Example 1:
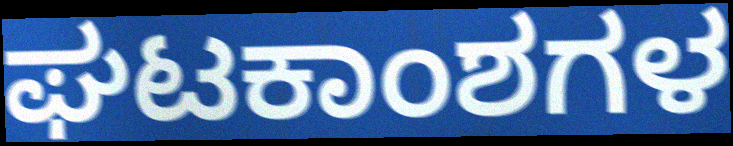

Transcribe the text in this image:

ಘಟಕಾಂಶಗಳ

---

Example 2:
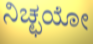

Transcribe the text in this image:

ನಿಚ್ಛಯೋ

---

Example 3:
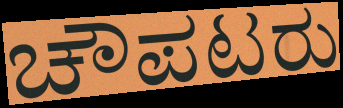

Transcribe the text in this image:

ಚೌಪಟರು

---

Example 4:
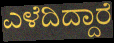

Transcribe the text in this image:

ಎಳೆದಿದ್ದಾರೆ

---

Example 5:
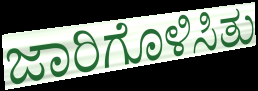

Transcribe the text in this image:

ಜಾರಿಗೊಳಿಸಿತು